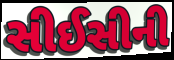
સીઈસીની